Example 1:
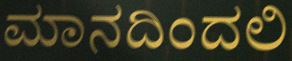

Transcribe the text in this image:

ಮಾನದಿಂದಲಿ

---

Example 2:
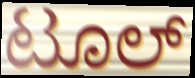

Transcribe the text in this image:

ಟೂಲ್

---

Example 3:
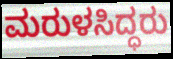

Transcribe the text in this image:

ಮರುಳಸಿದ್ಧರು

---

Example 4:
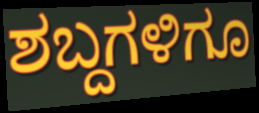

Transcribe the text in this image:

ಶಬ್ದಗಳಿಗೂ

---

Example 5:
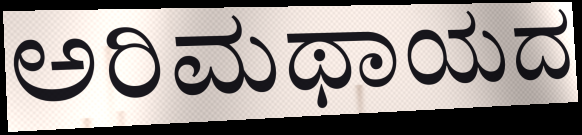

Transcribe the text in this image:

ಅರಿಮಥಾಯದ